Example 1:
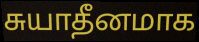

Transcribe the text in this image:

சுயாதீனமாக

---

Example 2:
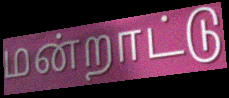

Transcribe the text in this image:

மன்றாட்டு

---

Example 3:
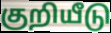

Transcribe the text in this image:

குறியீடு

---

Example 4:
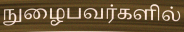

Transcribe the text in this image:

நுழைபவர்களில்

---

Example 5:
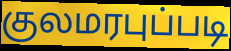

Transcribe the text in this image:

குலமரபுப்படி